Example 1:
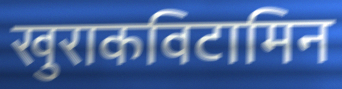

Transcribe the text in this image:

खुराकविटामिन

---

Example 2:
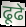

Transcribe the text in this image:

ढूढे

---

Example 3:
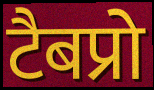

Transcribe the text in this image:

टैबप्रो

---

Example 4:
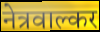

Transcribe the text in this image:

नेत्रवाल्कर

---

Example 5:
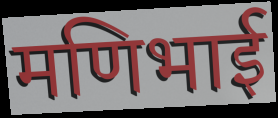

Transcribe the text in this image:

मणिभाई